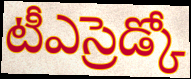
టీఎస్రెడ్కో